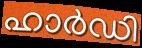
ഹാർഡി